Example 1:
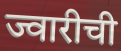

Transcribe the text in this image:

ज्वारीची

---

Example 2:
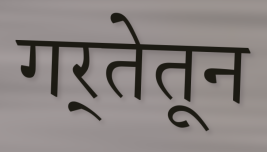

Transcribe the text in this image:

गर्तेतून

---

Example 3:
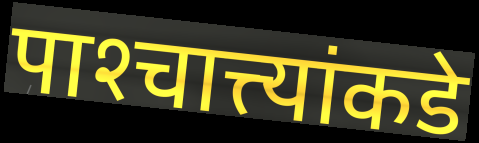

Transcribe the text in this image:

पाश्चात्त्यांकडे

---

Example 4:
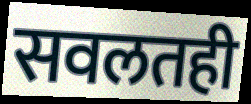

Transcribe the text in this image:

सवलतही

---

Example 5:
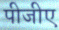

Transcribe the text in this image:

पीजीए